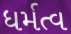
ધર્મત્વ